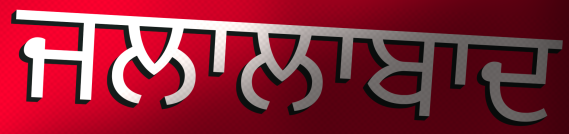
ਜਲਾਲਾਬਾਦ